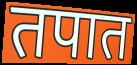
तपात